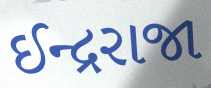
ઈન્દ્રરાજા